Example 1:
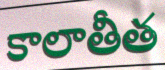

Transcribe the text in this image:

కాలాతీత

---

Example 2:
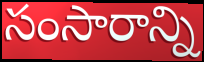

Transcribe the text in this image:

సంసారాన్ని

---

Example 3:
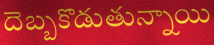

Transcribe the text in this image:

దెబ్బకొడుతున్నాయి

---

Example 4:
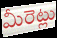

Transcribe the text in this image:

మీరెట్లు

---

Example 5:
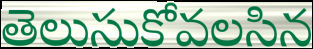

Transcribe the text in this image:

తెలుసుకోవలసిన